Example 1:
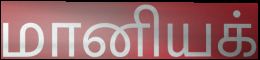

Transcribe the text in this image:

மானியக்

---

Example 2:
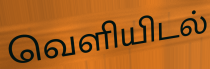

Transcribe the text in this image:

வெளியிடல்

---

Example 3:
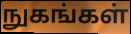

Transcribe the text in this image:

நுகங்கள்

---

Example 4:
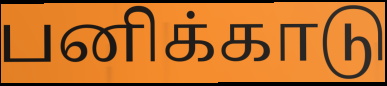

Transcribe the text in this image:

பனிக்காடு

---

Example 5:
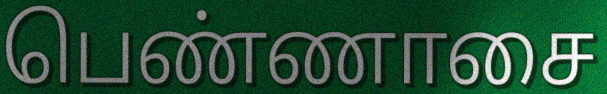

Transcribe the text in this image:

பெண்ணாசை